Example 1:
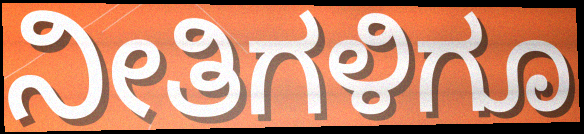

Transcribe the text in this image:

ನೀತಿಗಳಿಗೂ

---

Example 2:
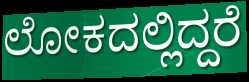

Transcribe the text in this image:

ಲೋಕದಲ್ಲಿದ್ದರೆ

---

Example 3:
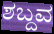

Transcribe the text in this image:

ಶಬ್ದವ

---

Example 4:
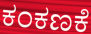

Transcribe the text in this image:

ಕಂಕಣಕೆ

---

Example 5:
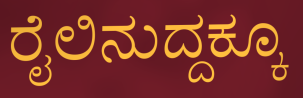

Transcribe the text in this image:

ರೈಲಿನುದ್ದಕ್ಕೂ